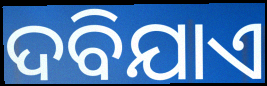
ଦବିଯାଏ